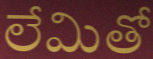
లేమితో